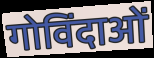
गोविंदाओं